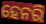
ହେନରି